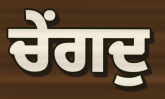
ਚੇਂਗਦੁ